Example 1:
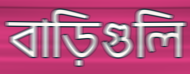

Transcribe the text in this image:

বাড়িগুলি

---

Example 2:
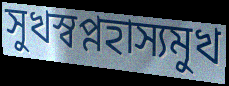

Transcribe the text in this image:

সুখস্বপ্নহাস্যমুখ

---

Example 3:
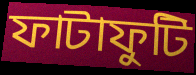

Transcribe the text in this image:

ফাটাফুটি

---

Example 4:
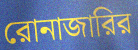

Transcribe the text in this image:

রোনাজারির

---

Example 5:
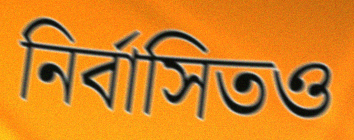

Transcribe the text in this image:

নির্বাসিতও